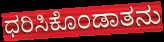
ಧರಿಸಿಕೊಂಡಾತನು